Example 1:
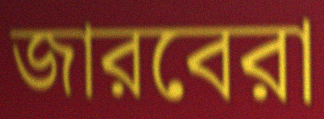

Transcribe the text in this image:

জারবেরা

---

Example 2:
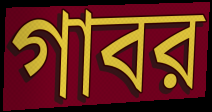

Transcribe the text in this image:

গাবর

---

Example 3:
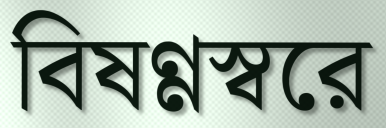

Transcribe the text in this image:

বিষণ্ণস্বরে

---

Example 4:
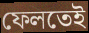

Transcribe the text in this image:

ফেলতেই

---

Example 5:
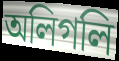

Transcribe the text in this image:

অলিগলি